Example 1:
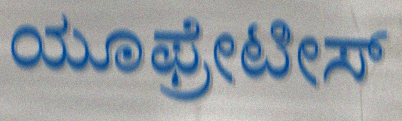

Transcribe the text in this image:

ಯೂಫ್ರೇಟೀಸ್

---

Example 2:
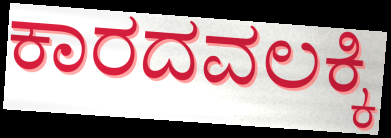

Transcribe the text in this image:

ಕಾರದವಲಕ್ಕಿ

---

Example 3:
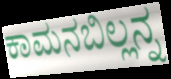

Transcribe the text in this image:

ಕಾಮನಬಿಲ್ಲನ್ನ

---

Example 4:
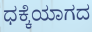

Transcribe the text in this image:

ಧಕ್ಕೆಯಾಗದ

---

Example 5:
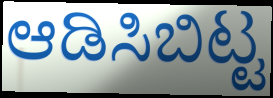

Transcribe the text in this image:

ಆಡಿಸಿಬಿಟ್ಟ